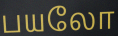
பயலோ